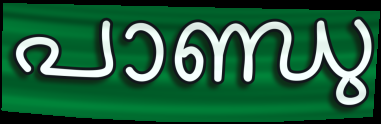
പാണ്ഡു